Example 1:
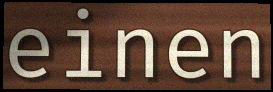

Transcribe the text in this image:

einen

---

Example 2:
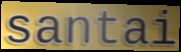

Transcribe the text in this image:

santai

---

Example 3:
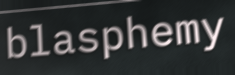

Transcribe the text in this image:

blasphemy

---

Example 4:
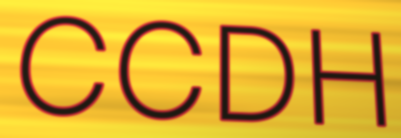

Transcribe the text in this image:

CCDH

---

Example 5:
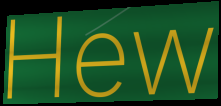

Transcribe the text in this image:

Hew